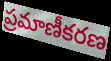
ప్రమాణీకరణ